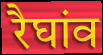
रैघांव